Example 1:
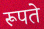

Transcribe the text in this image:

रूपते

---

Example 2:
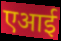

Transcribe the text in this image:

एआई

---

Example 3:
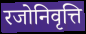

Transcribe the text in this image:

रजोनिवृत्ति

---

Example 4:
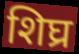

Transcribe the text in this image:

शिघ्र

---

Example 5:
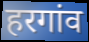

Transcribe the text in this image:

हरगांव